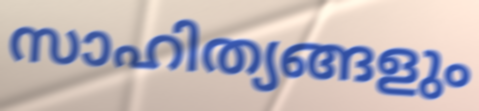
സാഹിത്യങ്ങളും